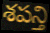
శపన్తి